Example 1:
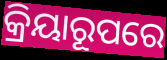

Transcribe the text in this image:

କ୍ରିୟାରୂପରେ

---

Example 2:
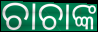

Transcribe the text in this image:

ଚାଚାଙ୍କ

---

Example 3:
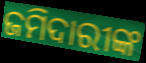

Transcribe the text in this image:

ଜମିଦାରୀଙ୍କ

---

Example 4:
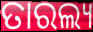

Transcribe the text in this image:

ତାରଲ୍ୟ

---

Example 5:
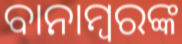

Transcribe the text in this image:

ବାନାମ୍ବରଙ୍କ